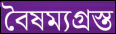
বৈষম্যগ্রস্ত